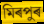
মিৰপুৰ